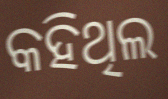
କହିଥିଲ